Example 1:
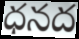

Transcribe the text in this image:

ధనద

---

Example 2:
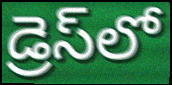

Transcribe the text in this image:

డ్రెస్‌లో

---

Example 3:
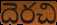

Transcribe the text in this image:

దెరచి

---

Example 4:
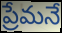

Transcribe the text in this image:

ప్రేమనే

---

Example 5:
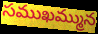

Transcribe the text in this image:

సముఖమ్మున